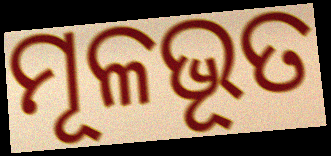
ମୂଳଭୂତ